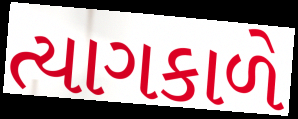
ત્યાગકાળે